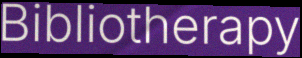
Bibliotherapy